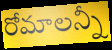
రోమాలన్నీ